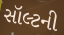
સૉલ્ટની